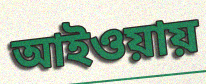
আইওয়ায়